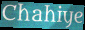
Chahiye